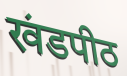
खंडपीठ